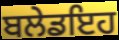
ਬਲੇਡਇਹ